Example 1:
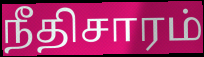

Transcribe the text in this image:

நீதிசாரம்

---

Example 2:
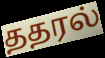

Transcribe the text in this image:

ததரல்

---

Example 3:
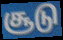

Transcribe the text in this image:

சூடு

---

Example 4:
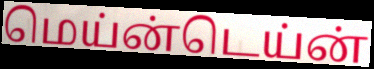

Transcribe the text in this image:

மெய்ன்டெய்ன்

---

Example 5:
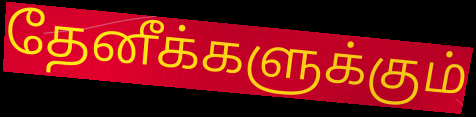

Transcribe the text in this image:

தேனீக்களுக்கும்